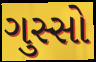
ગુસ્સો